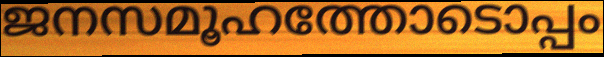
ജനസമൂഹത്തോടൊപ്പം